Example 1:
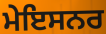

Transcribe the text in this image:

ਮੇਇਸਨਰ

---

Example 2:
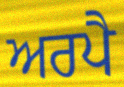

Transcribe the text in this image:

ਅਰਪੈ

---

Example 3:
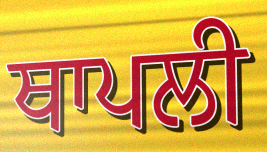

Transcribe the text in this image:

ਥਾਪਲੀ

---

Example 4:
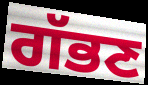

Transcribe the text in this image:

ਗੱਭਣ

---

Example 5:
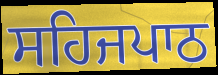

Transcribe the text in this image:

ਸਹਿਜਪਾਠ